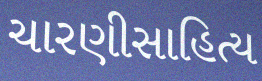
ચારણીસાહિત્ય